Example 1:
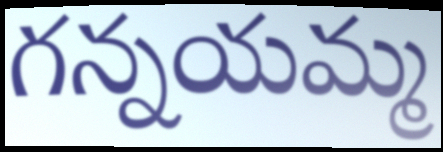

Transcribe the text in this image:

గన్నయమ్మ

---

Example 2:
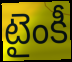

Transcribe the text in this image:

టైంకీ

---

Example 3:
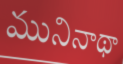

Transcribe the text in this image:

మునినాథా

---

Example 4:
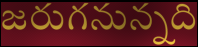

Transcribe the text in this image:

జరుగనున్నది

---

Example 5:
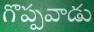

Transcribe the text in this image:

గొప్పవాడు